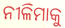
ନୀଳିମାକୁ